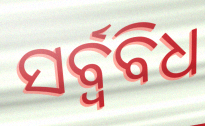
ସର୍ବ୍ବବିଧ